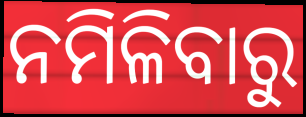
ନମିଳିବାରୁ